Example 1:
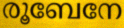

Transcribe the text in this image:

രൂബേനേ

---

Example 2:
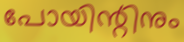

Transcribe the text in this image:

പോയിന്റിനും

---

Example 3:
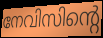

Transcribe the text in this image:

നേവിസിന്റെ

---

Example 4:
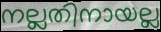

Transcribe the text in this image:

നല്ലതിനായല്ല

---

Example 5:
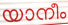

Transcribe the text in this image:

യാനീം